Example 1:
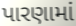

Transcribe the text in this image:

પારણામાં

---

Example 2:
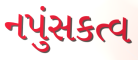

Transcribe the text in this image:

નપુંસકત્વ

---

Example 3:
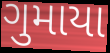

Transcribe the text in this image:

ગુમાયા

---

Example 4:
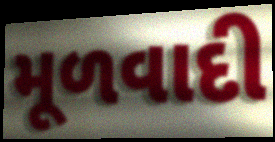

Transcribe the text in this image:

મૂળવાદી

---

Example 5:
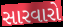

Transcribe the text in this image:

સારવારો